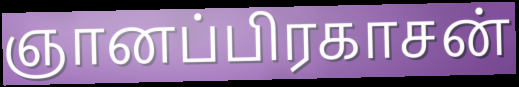
ஞானப்பிரகாசன்